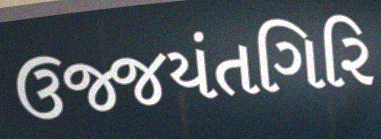
ઉજ્જયંતગિરિ